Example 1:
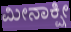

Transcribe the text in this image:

ಮೀನಾಕ್ಷೀ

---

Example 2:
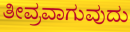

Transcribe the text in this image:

ತೀವ್ರವಾಗುವುದು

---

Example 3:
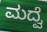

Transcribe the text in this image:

ಮದ್ವೆ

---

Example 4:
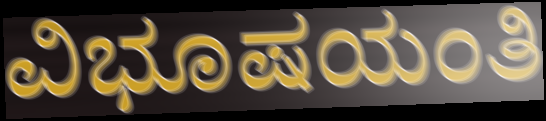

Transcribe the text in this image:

ವಿಭೂಷಯಂತಿ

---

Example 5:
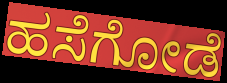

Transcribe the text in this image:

ಹಸೆಗೋಡೆ